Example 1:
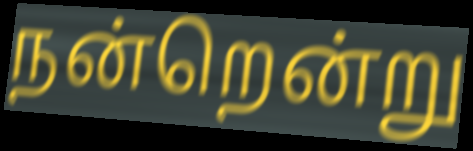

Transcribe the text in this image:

நன்றென்று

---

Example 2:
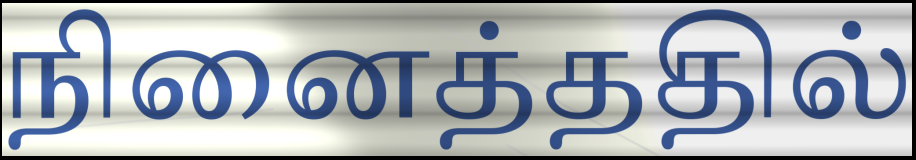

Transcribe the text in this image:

நினைத்ததில்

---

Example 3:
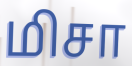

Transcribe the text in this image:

மிசா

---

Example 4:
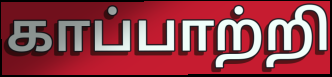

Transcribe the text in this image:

காப்பாற்றி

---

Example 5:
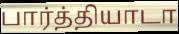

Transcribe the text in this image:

பார்த்தியாடா